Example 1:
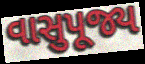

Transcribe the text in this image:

વાસુપૂજ્ય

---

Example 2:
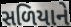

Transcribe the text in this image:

સળિયાને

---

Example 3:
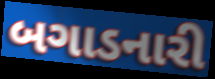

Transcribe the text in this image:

બગાડનારી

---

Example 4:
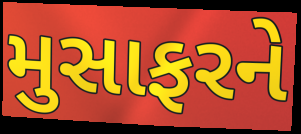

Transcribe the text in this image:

મુસાફરને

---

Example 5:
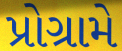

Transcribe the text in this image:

પ્રોગ્રામે